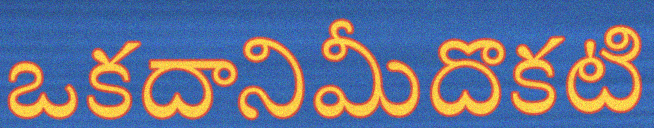
ఒకదానిమీదొకటి